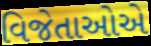
વિજેતાઓએ